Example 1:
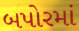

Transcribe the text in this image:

બપોરમાં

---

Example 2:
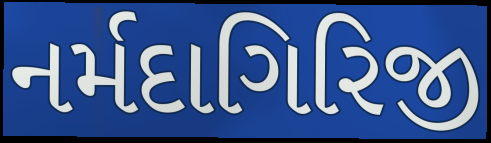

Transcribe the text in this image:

નર્મદાગિરિજી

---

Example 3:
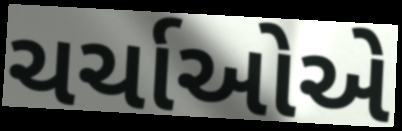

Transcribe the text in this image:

ચર્ચાઓએ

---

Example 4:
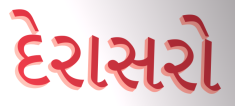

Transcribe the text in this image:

દેરાસરો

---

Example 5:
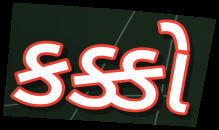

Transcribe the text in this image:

કક્કો